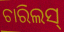
ଚାରିଲସ୍